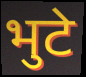
भुटे